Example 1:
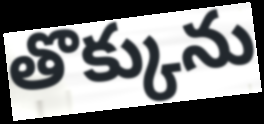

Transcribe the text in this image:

తొక్కును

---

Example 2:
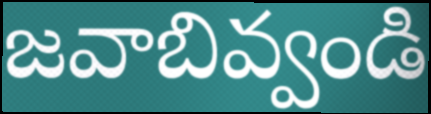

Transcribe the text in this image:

జవాబివ్వండి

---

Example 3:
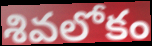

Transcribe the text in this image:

శివలోకం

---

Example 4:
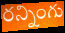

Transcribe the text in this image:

రన్నింగు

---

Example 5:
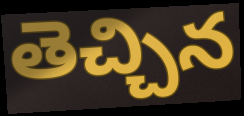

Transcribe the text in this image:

తెచ్చిన